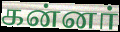
கன்னர்